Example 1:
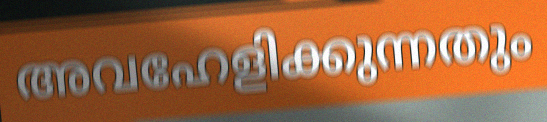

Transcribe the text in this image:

അവഹേളിക്കുന്നതും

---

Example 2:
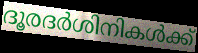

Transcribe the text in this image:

ദൂരദർശിനികൾക്ക്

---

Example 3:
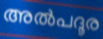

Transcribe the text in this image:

അൽപദൂര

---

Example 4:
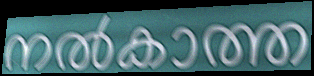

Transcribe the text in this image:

നൽകാത്ത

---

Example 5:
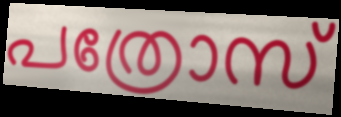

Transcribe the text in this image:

പത്രോസ്